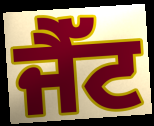
ਜੈੱਟ